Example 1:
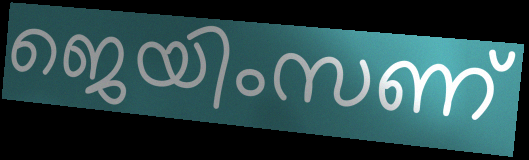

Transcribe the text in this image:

ജെയിംസണ്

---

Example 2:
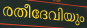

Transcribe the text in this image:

രതീദേവിയും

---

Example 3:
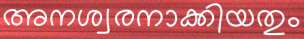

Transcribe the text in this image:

അനശ്വരനാക്കിയതും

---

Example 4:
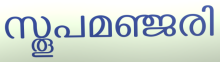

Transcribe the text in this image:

സ്തൂപമഞ്ജരി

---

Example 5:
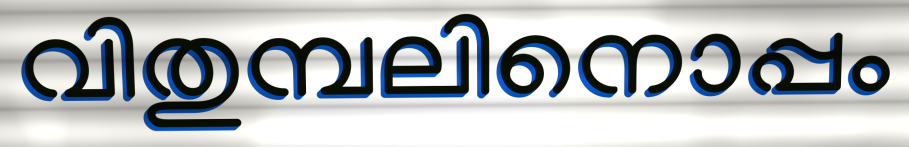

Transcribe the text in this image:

വിതുമ്പലിനൊപ്പം